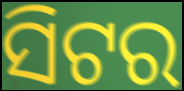
ସିଟର